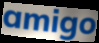
amigo